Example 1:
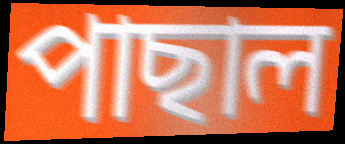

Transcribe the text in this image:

পাছাল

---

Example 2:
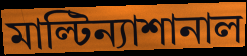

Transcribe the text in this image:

মাল্টিন্যাশানাল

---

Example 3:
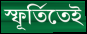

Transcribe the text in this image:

স্ফূর্তিতেই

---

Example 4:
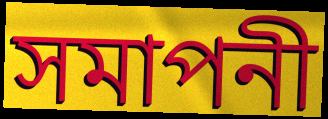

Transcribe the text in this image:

সমাপনী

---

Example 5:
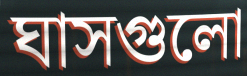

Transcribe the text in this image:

ঘাসগুলো